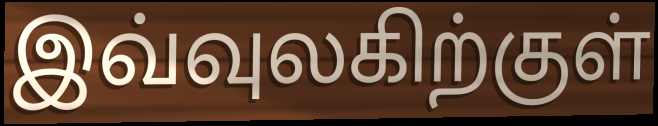
இவ்வுலகிற்குள்